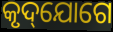
କୃଦ୍‌ଯୋଗେ